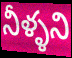
నీళ్ళని